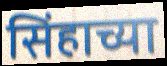
सिंहाच्या